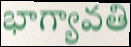
భాగ్యావతి